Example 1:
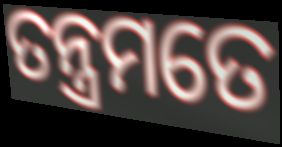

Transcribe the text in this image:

ତନ୍ତ୍ରମତେ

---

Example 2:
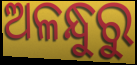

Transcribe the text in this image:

ଅଳନ୍ଧୁରୁ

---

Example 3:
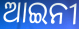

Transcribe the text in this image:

ଆଇନୀ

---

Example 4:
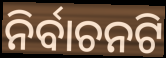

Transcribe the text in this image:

ନିର୍ବାଚନଟି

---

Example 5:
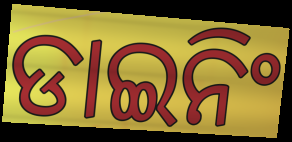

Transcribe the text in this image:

ଡାଇନିଂ